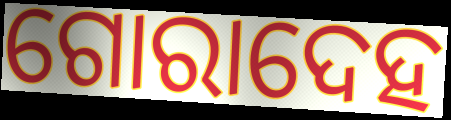
ଗୋରାଦେହ